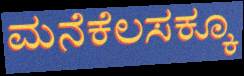
ಮನೆಕೆಲಸಕ್ಕೂ